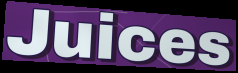
Juices